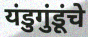
यंडुगुंडूंचे